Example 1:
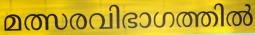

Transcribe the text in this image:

മത്സരവിഭാഗത്തിൽ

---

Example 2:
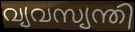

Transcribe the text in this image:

വ്യവസ്യന്തി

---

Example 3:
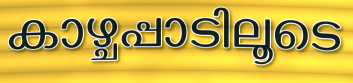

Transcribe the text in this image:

കാഴ്ചപ്പാടിലൂടെ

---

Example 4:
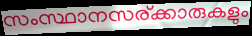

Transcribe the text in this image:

സംസ്ഥാനസര്ക്കാരുകളും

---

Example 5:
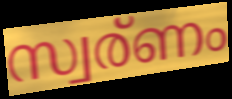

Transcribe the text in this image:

സ്വര്ണം